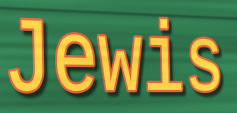
Jewis